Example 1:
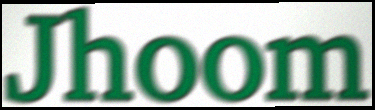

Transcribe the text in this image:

Jhoom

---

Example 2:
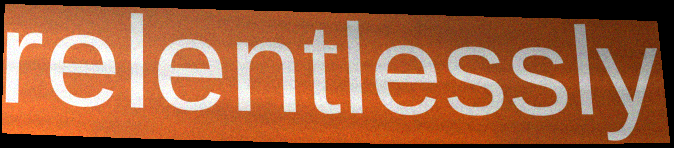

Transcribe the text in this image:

relentlessly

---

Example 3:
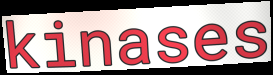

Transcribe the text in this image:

kinases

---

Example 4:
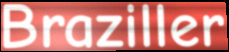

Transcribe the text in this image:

Braziller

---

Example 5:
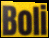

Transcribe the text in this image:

Boli